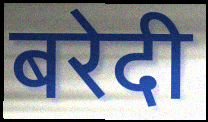
बरेदी